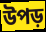
উপড়